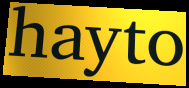
hayto